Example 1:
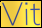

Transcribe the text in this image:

Vit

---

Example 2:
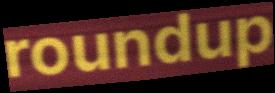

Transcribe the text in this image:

roundup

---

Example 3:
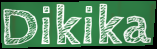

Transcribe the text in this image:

Dikika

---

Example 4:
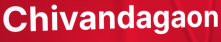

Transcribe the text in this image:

Chivandagaon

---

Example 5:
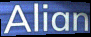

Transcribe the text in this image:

Alian